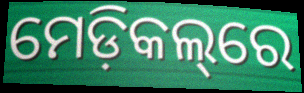
ମେଡ଼ିକଲ୍‌ରେ